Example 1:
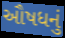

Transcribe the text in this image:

ઔષધનું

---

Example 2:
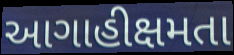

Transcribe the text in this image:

આગાહીક્ષમતા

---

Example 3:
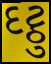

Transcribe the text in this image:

દટ્ઠુ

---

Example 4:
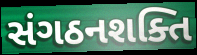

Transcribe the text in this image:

સંગઠનશક્તિ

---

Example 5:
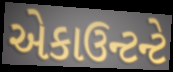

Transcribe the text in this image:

એકાઉન્ટન્ટે